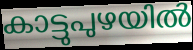
കാട്ടുപുഴയിൽ